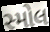
સ્મોલ